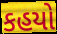
કહયો